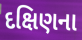
દક્ષિણના